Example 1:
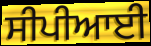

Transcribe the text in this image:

ਸੀਪੀਆਈ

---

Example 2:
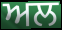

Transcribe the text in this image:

ਅਲ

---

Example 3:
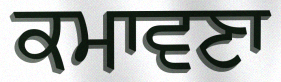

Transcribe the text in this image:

ਕਮਾਵਣਾ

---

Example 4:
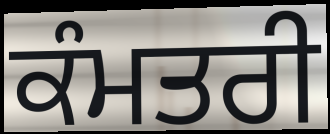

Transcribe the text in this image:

ਕੰਮਤਰੀ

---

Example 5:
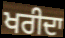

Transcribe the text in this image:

ਖਰੀਦਾ